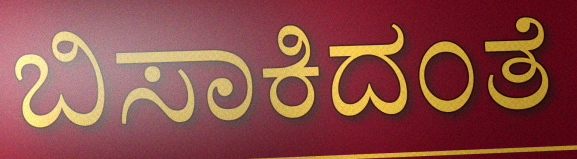
ಬಿಸಾಕಿದಂತೆ